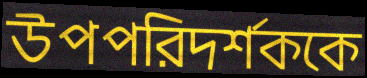
উপপরিদর্শককে